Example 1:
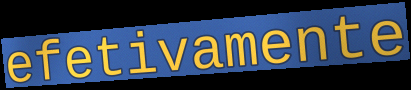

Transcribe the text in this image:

efetivamente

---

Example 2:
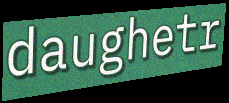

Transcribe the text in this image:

daughetr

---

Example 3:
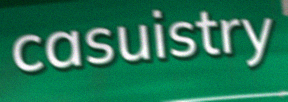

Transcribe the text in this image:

casuistry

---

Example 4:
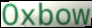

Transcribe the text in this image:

Oxbow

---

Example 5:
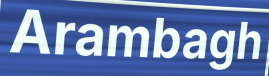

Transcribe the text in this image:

Arambagh